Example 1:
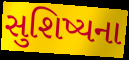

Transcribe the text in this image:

સુશિષ્યના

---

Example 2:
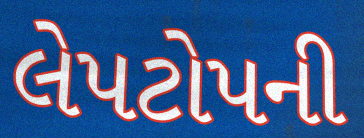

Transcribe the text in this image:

લેપટોપની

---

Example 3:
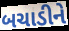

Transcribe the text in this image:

બચાડીને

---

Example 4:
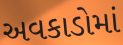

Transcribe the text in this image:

અવકાડોમાં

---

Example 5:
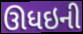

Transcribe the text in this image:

ઊધઇની